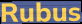
Rubus